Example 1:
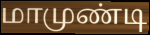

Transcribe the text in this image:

மாமுண்டி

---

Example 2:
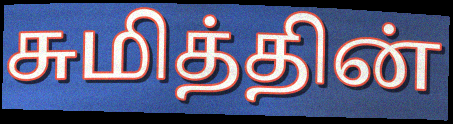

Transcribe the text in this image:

சுமித்தின்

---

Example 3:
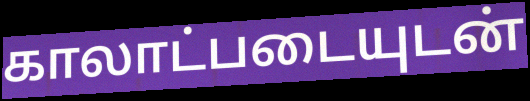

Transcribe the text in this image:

காலாட்படையுடன்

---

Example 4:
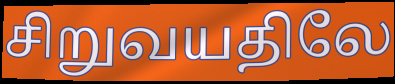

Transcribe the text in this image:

சிறுவயதிலே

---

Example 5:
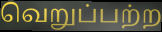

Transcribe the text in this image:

வெறுப்பற்ற